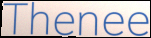
Thenee